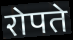
रोपते